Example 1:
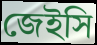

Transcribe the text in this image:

জেইসি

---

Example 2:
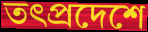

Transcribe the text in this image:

তৎপ্রদেশে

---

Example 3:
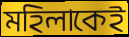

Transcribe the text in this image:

মহিলাকেই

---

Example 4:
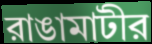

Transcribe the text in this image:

রাঙামাটীর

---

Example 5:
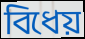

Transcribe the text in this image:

বিধেয়